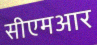
सीएमआर